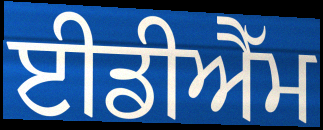
ਈਡੀਐੱਮ